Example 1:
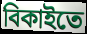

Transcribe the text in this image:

বিকাইতে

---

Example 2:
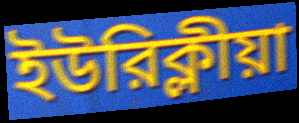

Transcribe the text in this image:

ইউরিক্লীয়া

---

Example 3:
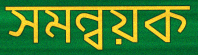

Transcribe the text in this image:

সমন্বয়ক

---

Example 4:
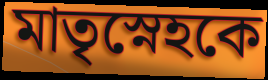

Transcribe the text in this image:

মাতৃস্নেহকে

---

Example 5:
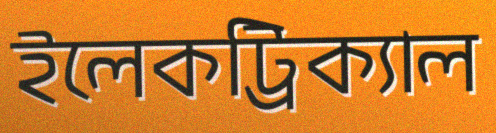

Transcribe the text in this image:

ইলেকট্রিক্যাল